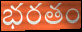
భరతం